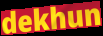
dekhun